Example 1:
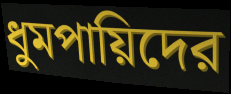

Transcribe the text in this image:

ধুমপায়িদের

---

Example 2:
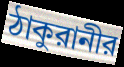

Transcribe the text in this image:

ঠাকুরানীর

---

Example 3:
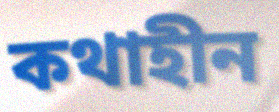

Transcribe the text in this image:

কথাহীন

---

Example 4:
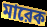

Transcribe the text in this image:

মারেক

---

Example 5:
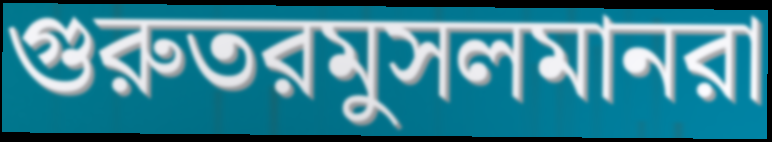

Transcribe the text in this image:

গুরুতরমুসলমানরা